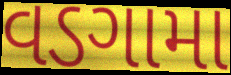
વડગામા